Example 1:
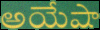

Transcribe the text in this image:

అయేషా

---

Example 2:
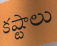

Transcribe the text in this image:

కష్టాలు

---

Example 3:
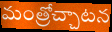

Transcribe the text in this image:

మంత్రోచ్చాటన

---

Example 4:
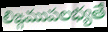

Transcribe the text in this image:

లిఙ్గముపలభ్యతే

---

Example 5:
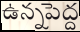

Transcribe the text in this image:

ఉన్నపెద్ద